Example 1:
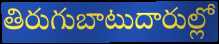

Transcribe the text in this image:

తిరుగుబాటుదారుల్లో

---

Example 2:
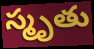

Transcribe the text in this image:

స్మృతు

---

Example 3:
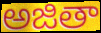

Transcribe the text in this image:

అజితా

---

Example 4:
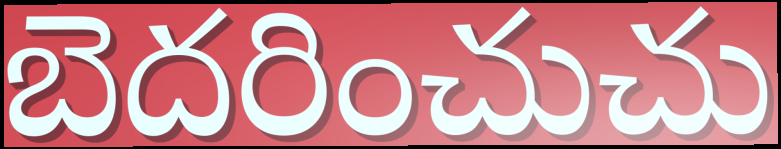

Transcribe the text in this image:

బెదరించుచు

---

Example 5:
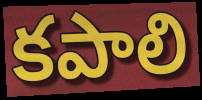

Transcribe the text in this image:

కపాలి